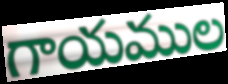
గాయముల